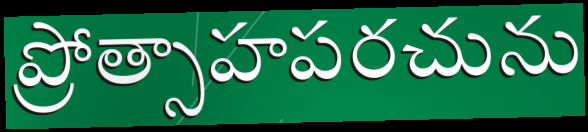
ప్రోత్సాహపరచును